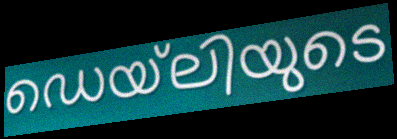
ഡെയ്‌ലിയുടെ